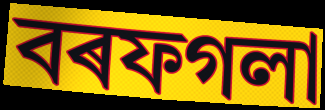
বৰফগলা